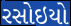
રસોઇયો